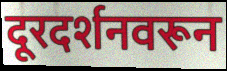
दूरदर्शनवरून